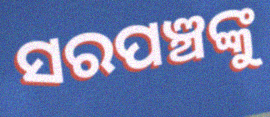
ସରପଞ୍ଚଙ୍କୁ